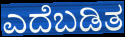
ಎದೆಬಡಿತ